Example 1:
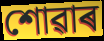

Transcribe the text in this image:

শোৱাৰ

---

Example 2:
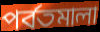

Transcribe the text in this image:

পৰ্বতমালা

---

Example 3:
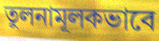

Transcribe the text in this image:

তুলনামূলকভাবে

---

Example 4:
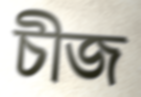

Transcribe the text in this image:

চীজ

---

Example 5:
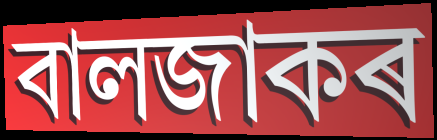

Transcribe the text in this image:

বালজাকৰ